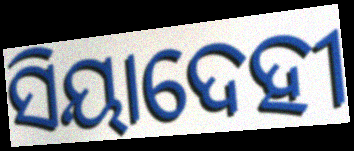
ସିୟାଦେହୀ